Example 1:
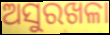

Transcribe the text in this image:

ଅସୁରଖଳା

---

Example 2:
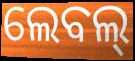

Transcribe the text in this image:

ଲେବଲ୍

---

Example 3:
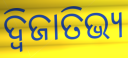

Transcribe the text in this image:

ଦ୍ବିଜାତିଭ୍ୟ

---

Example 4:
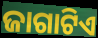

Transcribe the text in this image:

ଜାଗାଟିଏ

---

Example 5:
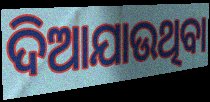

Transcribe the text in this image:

ଦିଆଯାଉଥିବା